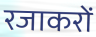
रजाकरों